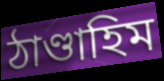
ঠাণ্ডাহিম